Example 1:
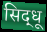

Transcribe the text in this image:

सिद्धू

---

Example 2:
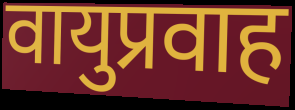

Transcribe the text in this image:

वायुप्रवाह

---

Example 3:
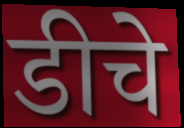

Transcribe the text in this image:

डीचे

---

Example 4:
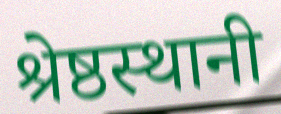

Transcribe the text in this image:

श्रेष्ठस्थानी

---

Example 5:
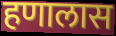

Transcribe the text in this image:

हणालास